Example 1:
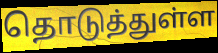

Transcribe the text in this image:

தொடுத்துள்ள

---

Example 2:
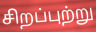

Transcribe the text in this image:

சிறப்புற்று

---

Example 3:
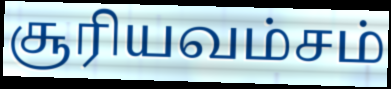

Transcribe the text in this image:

சூரியவம்சம்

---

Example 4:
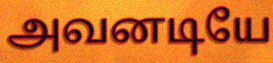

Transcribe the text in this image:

அவனடியே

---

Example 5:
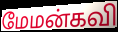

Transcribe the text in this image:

மேமன்கவி